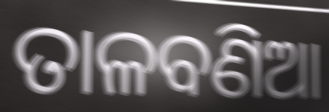
ତାଳବଣିଆ